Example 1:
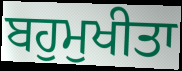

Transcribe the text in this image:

ਬਹੁਮੁਖੀਤਾ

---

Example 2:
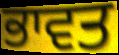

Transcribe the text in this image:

ਭਾਵਤ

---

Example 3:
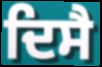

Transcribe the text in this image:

ਦਿਸੈ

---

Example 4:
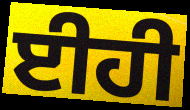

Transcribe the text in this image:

ਈਹੀ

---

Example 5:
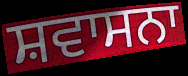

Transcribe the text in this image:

ਸ਼ਵਾਸਨਾ